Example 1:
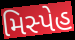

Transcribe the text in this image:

મિસ્પેહ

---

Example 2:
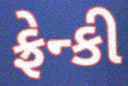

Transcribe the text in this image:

ફ્રેન્કી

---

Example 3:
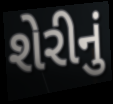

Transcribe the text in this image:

શેરીનું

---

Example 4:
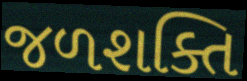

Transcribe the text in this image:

જળશક્તિ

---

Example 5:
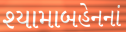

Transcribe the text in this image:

શ્યામાબહેનનાં